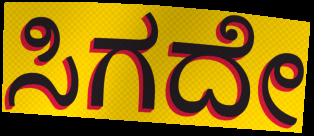
ಸಿಗದೇ